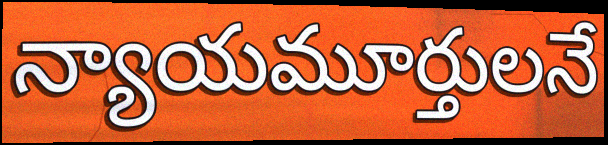
న్యాయమూర్తులనే